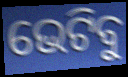
ଭେଟିବୁ